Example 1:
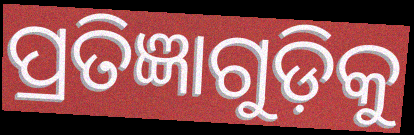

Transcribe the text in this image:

ପ୍ରତିଜ୍ଞାଗୁଡ଼ିକୁ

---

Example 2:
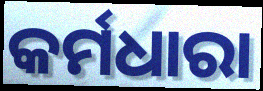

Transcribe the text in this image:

କର୍ମଧାରା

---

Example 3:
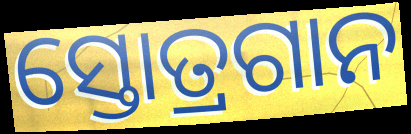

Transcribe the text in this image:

ସ୍ତୋତ୍ରଗାନ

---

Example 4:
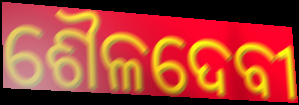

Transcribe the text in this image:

ଶୈଳଦେବୀ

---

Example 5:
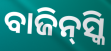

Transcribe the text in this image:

ବାଜିନ୍‌ସ୍କି